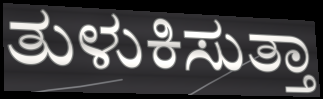
ತುಳುಕಿಸುತ್ತಾ